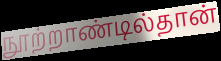
நூற்றாண்டில்தான்